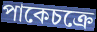
পাকেচক্রে